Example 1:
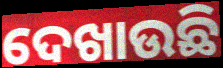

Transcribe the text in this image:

ଦେଖାଉଛି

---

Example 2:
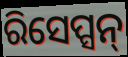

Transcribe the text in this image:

ରିସେପ୍ସନ୍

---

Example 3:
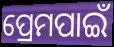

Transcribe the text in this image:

ପ୍ରେମପାଇଁ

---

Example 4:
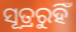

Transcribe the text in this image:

ସୂତ୍ରରୁହିଁ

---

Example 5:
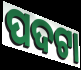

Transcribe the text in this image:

ପଦଟା